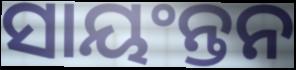
ସାୟଂନ୍ତନ